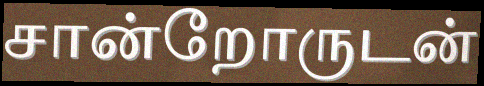
சான்றோருடன்